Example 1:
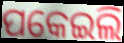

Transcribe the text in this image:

ପକେଇଲି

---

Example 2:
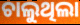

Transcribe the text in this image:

ଚାଲୁଥିଲା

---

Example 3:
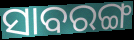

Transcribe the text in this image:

ସାବରଙ୍ଗ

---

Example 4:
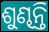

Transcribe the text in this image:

ଶୁଣ୍ଢନ୍ତି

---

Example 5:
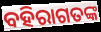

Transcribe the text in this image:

ବହିରାଗତଙ୍କ